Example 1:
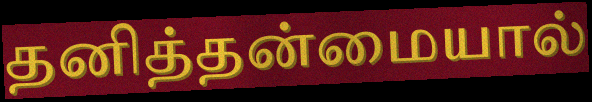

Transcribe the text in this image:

தனித்தன்மையால்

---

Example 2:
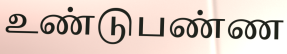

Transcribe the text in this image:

உண்டுபண்ண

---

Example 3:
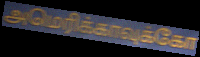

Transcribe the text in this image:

அமெரிக்காவுக்கோ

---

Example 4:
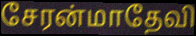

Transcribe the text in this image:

சேரன்மாதேவி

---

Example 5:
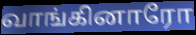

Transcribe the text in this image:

வாங்கினாரோ